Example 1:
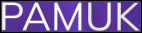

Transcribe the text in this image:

PAMUK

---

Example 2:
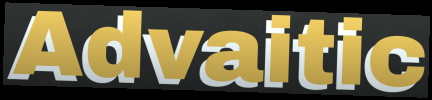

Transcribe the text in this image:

Advaitic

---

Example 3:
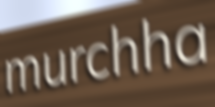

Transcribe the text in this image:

murchha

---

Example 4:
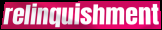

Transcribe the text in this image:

relinquishment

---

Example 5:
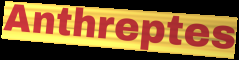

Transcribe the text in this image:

Anthreptes